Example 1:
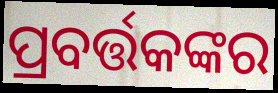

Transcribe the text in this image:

ପ୍ରବର୍ତ୍ତକଙ୍କର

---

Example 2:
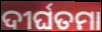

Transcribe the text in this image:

ଦୀର୍ଘତମା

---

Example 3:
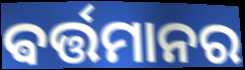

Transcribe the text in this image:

ଵର୍ତ୍ତମାନର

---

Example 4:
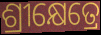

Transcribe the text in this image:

ଶ୍ରୀକ୍ଷେତ୍ରେ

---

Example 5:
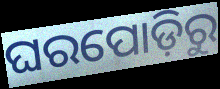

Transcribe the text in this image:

ଘରପୋଡ଼ିରୁ